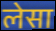
लेसा